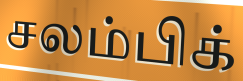
சலம்பிக்